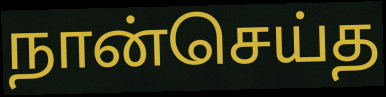
நான்செய்த